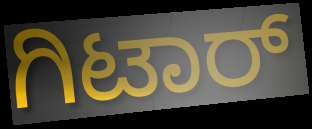
ಗಿಟಾರ್